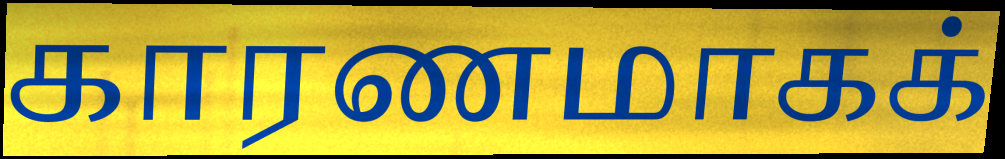
காரணமாகக்